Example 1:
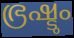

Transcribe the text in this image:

ഭ്രഷ്ടും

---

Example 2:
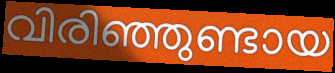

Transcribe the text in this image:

വിരിഞ്ഞുണ്ടായ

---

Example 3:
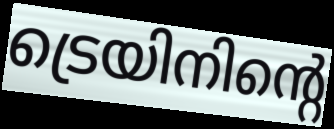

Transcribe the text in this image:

ട്രെയിനിന്റെ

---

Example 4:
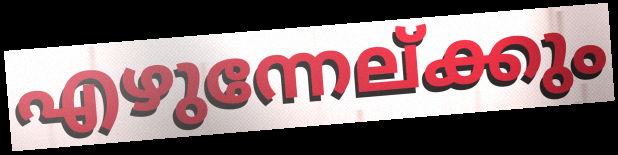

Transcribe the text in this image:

എഴുന്നേല്ക്കും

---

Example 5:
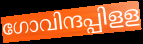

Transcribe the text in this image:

ഗോവിന്ദപ്പിളള